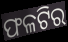
ଫଳଟିର